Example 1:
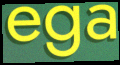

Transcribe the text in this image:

ega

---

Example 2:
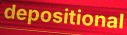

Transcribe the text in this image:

depositional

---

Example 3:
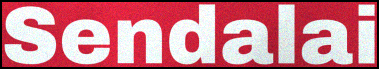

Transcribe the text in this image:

Sendalai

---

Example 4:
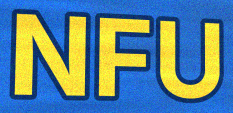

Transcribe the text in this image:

NFU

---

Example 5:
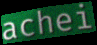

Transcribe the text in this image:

achei